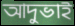
আদুভাই